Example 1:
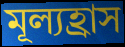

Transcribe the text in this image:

মূল্যহ্রাস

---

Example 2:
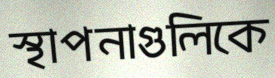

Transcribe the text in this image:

স্থাপনাগুলিকে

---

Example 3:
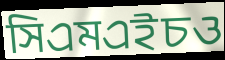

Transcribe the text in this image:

সিএমএইচও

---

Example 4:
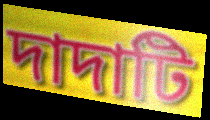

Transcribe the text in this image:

দাদাটি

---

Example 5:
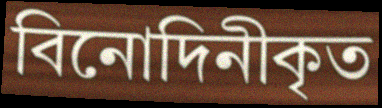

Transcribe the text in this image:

বিনোদিনীকৃত